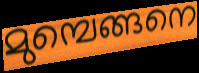
മുമ്പെങ്ങനെ